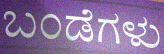
ಬಂಡೆಗಳು